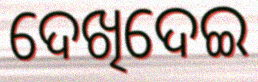
ଦେଖିଦେଇ